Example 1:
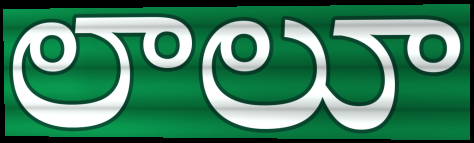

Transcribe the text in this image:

లాలూ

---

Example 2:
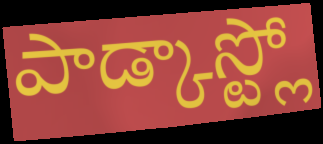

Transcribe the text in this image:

పాడ్కాస్ట్లో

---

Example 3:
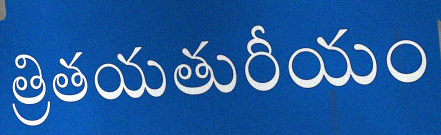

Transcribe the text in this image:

త్రితయతురీయం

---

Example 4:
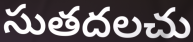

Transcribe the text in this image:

సుతదలచు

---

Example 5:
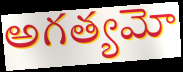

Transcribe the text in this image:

అగత్యమో